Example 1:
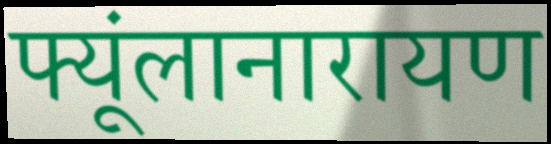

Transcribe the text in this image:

फ्यूंलानारायण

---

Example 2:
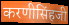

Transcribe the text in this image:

करणीसिंहजी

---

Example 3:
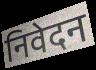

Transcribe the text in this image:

निवेदन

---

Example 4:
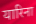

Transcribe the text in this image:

यारिना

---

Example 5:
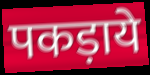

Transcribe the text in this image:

पकड़ाये